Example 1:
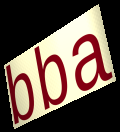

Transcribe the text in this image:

bba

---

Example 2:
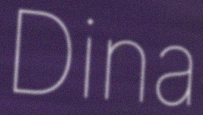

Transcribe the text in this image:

Dina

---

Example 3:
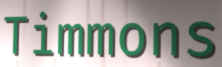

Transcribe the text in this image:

Timmons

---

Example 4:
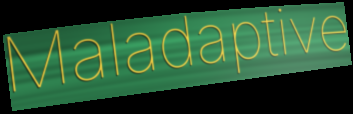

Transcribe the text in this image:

Maladaptive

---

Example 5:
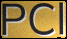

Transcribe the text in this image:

PCl